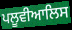
ਪਲੂਵੀਆਲਿਸ